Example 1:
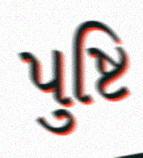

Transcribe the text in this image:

પુષ્ટિ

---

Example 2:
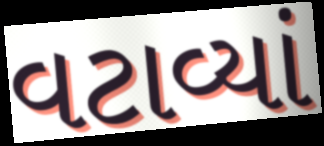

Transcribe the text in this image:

વટાવ્યાં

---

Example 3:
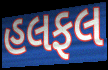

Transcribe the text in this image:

હલફલ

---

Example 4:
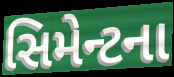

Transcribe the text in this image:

સિમેન્ટના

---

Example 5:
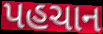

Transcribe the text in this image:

પહચાન